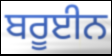
ਬਰੂਈਨ